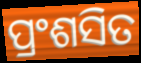
ପ୍ରଂଶସିତ